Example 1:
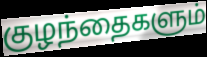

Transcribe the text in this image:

குழந்தைகளும்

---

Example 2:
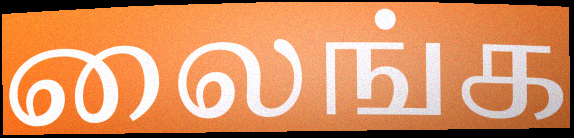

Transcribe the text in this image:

லைங்க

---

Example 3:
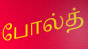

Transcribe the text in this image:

போல்த்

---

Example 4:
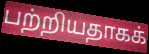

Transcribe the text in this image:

பற்றியதாகக்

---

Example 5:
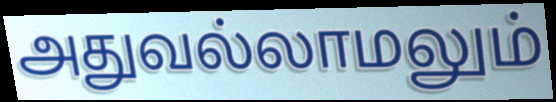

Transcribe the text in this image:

அதுவல்லாமலும்